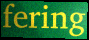
fering